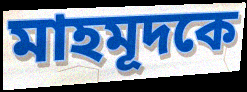
মাহমূদকে